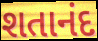
શતાનંદ